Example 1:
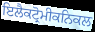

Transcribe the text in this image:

ਇਲੈਕਟ੍ਰੋਮੀਕਨਿਕਲ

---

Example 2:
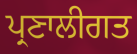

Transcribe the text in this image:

ਪ੍ਰਣਾਲੀਗਤ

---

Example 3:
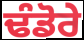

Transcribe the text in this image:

ਢੰਡੋਰੇ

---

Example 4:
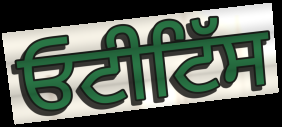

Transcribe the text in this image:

ਓਟੀਟਿੱਸ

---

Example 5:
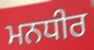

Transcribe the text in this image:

ਮਨਧੀਰ